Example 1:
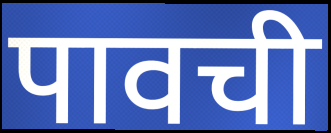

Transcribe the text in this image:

पावची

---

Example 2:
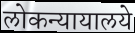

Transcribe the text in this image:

लोकन्यायालये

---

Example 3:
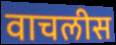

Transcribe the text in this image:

वाचलीस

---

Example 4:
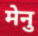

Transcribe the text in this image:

मेनु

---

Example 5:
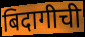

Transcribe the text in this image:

बिदागीची